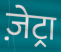
ज़ेट्रा